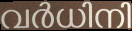
വർധിനി